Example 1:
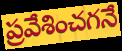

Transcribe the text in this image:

ప్రవేశించగనే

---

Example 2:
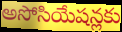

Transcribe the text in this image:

అసోసియేషన్లకు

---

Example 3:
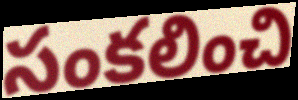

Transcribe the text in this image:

సంకలించి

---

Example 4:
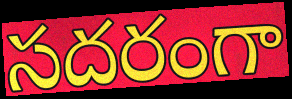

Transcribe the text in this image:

సదరంగా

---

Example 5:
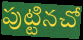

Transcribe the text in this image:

పుట్టినచో